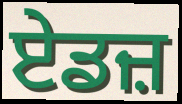
ਏਡਜ਼